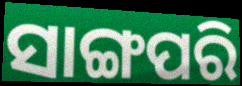
ସାଙ୍ଗପରି